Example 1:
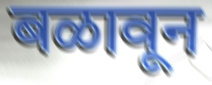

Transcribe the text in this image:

बळावून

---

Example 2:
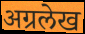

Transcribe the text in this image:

अग्रलेख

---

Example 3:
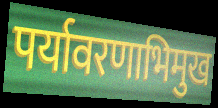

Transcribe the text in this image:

पर्यावरणाभिमुख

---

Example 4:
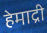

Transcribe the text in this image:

हेमाद्री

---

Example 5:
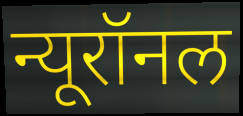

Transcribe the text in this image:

न्यूरॉनल